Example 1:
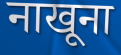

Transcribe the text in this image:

नाखूना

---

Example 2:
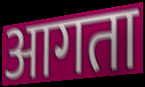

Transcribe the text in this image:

आगता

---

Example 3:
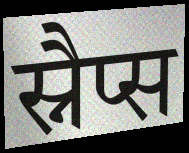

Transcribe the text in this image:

स्नैप्स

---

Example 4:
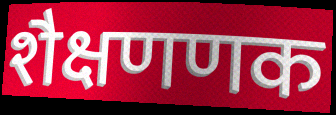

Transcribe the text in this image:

शैक्षणणक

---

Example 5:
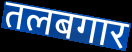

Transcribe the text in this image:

तलबगार